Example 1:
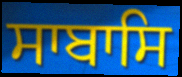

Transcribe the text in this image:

ਸਾਬਾਸਿ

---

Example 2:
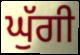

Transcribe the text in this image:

ਘੁੱਗੀ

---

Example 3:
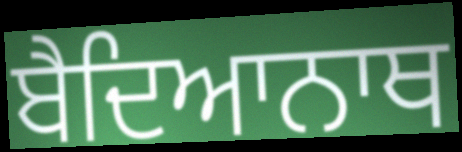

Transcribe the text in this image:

ਬੈਦਿਆਨਾਥ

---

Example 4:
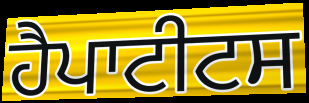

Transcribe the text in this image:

ਹੈਪਾਟੀਟਸ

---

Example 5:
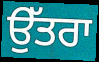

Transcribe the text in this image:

ਉੱਤਰਾ